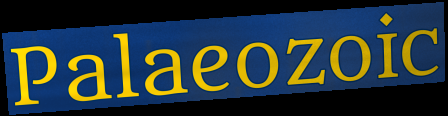
Palaeozoic